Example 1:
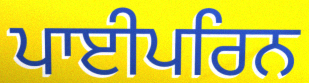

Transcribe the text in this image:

ਪਾਈਪਰਿਨ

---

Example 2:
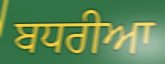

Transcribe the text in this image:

ਬਧਰੀਆ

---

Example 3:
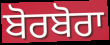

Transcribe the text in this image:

ਬੋਰਬੋਰਾ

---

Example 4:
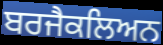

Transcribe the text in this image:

ਬਰਜੈਕਲਿਅਨ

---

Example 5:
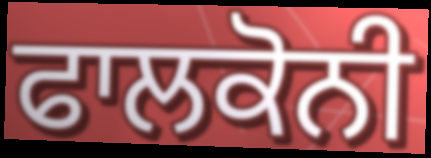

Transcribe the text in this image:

ਫਾਲਕੋਨੀ